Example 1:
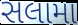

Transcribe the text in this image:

સલામા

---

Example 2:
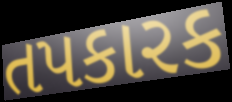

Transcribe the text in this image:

તપકારક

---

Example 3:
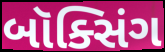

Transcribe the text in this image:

બૉક્સિંગ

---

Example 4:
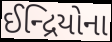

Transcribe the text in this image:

ઈન્દ્રિયોના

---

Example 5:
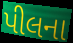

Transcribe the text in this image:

પીલના